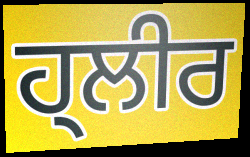
ਹ੍ਲੀਰ